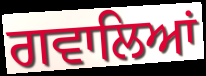
ਗਵਾਲਿਆਂ